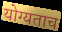
योग्यताच